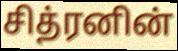
சித்ரனின்